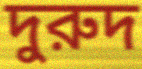
দুরুদ